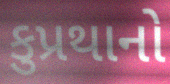
કુપ્રથાનો